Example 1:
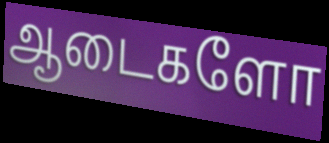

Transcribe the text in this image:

ஆடைகளோ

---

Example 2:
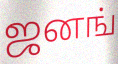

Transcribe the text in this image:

ஜனங்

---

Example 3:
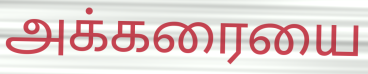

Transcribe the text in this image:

அக்கரையை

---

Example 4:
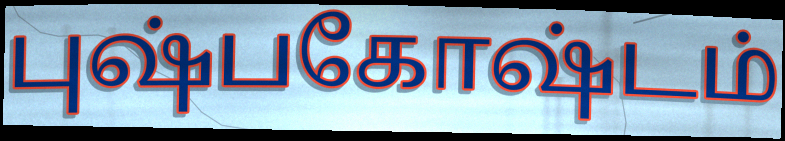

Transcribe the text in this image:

புஷ்பகோஷ்டம்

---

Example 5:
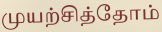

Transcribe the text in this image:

முயற்சித்தோம்